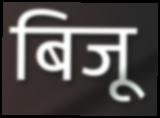
बिजू